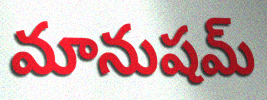
మానుషమ్